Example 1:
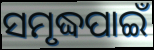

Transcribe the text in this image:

ସମୃଦ୍ଧପାଇଁ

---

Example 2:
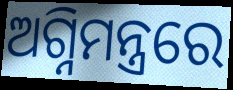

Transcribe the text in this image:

ଅଗ୍ନିମନ୍ତ୍ରରେ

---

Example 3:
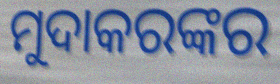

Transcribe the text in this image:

ମୁଦାକରଙ୍କର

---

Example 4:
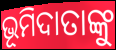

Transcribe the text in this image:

ଭୂମିଦାତାଙ୍କୁ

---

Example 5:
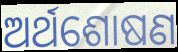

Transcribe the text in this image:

ଅର୍ଥଶୋଷଣ